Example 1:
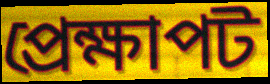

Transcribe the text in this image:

প্ৰেক্ষাপট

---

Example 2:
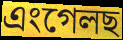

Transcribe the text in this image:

এংগেলছ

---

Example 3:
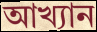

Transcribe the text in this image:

আখ্যান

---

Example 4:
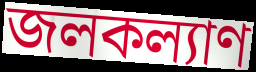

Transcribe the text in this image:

জলকল্যাণ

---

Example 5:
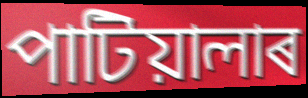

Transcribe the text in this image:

পাটিয়ালাৰ